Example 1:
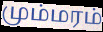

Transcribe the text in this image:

மும்மரம்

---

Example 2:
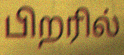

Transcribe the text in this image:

பிறரில்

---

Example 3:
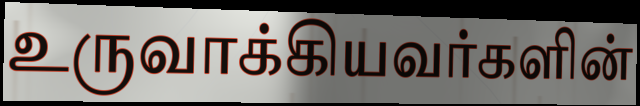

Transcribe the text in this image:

உருவாக்கியவர்களின்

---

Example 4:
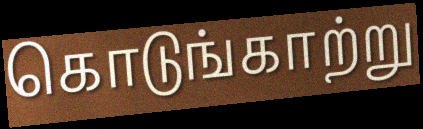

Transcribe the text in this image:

கொடுங்காற்று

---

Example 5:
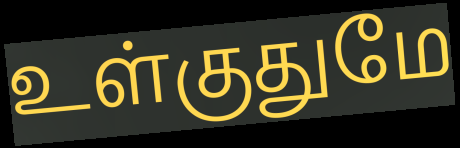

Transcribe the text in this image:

உள்குதுமே